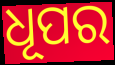
ଧୂପର